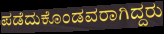
ಪಡೆದುಕೊಂಡವರಾಗಿದ್ದರು